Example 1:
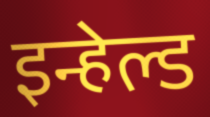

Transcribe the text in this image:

इन्हेल्ड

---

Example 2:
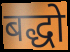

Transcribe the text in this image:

बद्धो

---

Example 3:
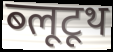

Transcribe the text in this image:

ब्‍लूटूथ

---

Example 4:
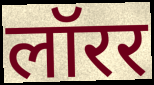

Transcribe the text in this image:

लॉरर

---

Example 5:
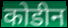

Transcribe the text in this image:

कोडीन